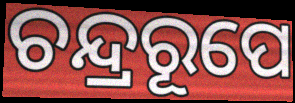
ଚନ୍ଦ୍ରରୂପେ